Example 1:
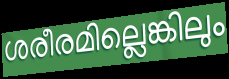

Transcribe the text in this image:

ശരീരമില്ലെങ്കിലും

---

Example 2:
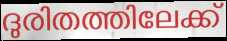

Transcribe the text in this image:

ദുരിതത്തിലേക്ക്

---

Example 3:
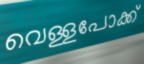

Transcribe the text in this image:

വെള്ളപോക്ക്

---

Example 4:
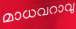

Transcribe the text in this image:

മാധവറാവു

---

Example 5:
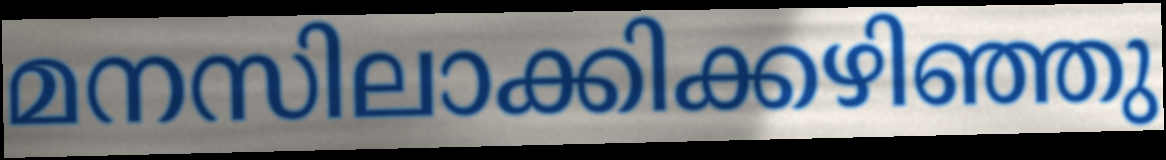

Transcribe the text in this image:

മനസിലാക്കിക്കഴിഞ്ഞു